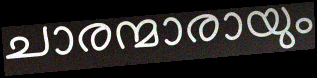
ചാരന്മാരായും